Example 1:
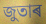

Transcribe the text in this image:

জুতাৰ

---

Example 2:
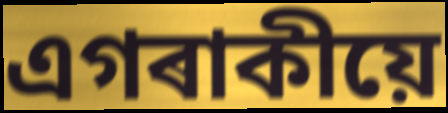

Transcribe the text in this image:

এগৰাকীয়ে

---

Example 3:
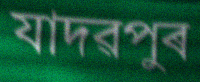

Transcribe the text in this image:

যাদৱপুৰ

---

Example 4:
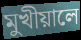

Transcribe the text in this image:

মুখীয়ালে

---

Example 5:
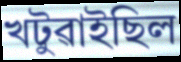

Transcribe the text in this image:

খটুৱাইছিল